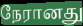
நேரானது